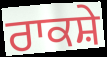
ਰਾਕਸ਼ੇ